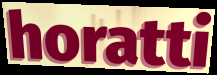
horatti